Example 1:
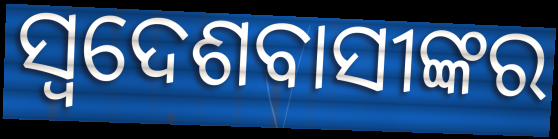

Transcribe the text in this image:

ସ୍ୱଦେଶବାସୀଙ୍କର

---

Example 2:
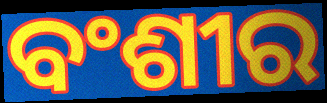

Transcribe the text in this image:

ବଂଶୀର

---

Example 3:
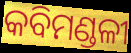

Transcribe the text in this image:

କବିମଣ୍ଡଳୀ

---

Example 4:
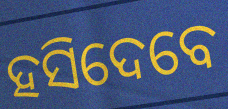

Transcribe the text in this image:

ହସିଦେବେ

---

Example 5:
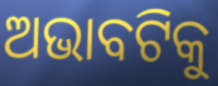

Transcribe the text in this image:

ଅଭାବଟିକୁ